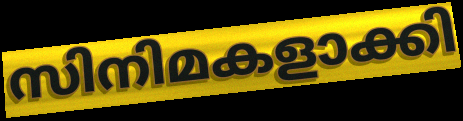
സിനിമകളാക്കി